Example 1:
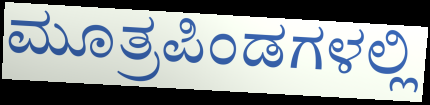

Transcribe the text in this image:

ಮೂತ್ರಪಿಂಡಗಳಲ್ಲಿ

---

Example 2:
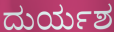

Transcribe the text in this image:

ದುರ್ಯಶ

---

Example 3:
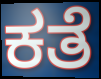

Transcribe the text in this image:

ಕತೆ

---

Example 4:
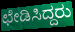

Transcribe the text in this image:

ಛೇಡಿಸಿದ್ದರು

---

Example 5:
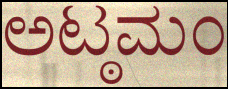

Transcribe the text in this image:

ಅಟ್ಠಮಂ